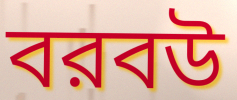
বরবউ